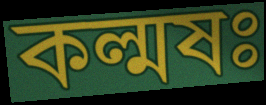
কল্মষঃ